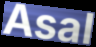
Asal